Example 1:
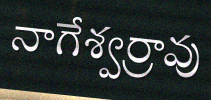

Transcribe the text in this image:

నాగేశ్వర్రావు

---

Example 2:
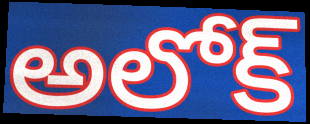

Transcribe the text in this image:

అలోక్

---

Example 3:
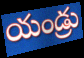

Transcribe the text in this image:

యండ్రు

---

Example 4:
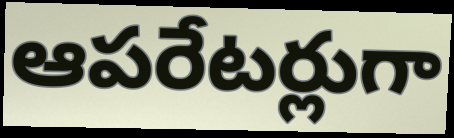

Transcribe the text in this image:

ఆపరేటర్లుగా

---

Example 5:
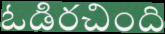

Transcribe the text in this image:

ఓడిరచింది